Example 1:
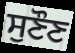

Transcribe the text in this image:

ਸੁਣੌਣ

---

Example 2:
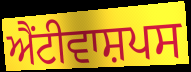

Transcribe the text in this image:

ਐਂਟੀਵਾਸ਼ਪਸ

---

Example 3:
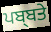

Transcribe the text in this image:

ਪਬ੍ਬਤੇ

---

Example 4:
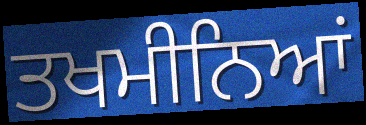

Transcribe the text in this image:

ਤਖਮੀਨਿਆਂ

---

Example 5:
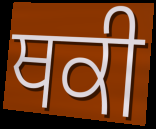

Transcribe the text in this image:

ਥਕੀ